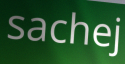
sachej